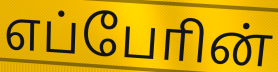
எப்பேரின்